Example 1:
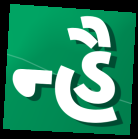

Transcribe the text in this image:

ન્હૈ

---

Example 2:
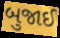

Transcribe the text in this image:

બુજાઈ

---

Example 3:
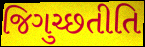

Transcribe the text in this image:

જિગુચ્છતીતિ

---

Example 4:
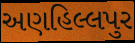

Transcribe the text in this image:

અણહિલ્લપુર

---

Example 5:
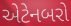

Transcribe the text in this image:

એટેનબરો